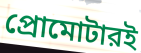
প্রোমোটারই